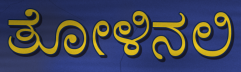
ತೋಳಿನಲಿ